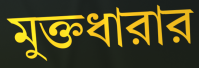
মুক্তধারার